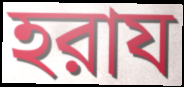
হরায